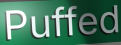
Puffed